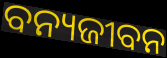
ବନ୍ୟଜୀବନ